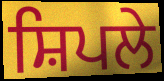
ਸ਼ਿਪਲੇ